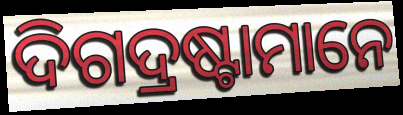
ଦିଗଦ୍ରଷ୍ଟାମାନେ